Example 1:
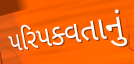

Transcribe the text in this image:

પરિપક્વતાનું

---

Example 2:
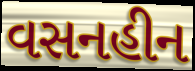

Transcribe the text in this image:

વસનહીન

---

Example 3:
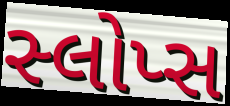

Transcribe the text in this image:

સ્લોપ્સ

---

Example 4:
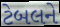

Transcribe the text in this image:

ટેબલને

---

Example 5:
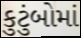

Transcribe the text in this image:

કુટુંબોમાં